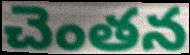
చెంతన